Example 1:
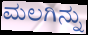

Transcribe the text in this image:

ಮಲಗಿನ್ನು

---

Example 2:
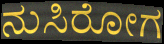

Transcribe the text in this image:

ನುಸಿರೋಗ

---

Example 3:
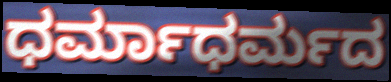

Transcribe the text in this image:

ಧರ್ಮಾಧರ್ಮದ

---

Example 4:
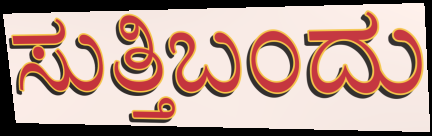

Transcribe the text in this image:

ಸುತ್ತಿಬಂದು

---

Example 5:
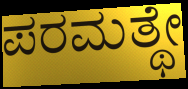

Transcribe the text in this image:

ಪರಮತ್ಥೇ